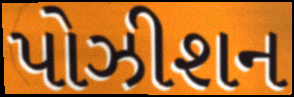
પોઝીશન